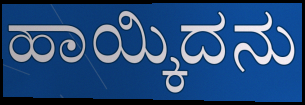
ಹಾಯ್ಕಿದನು